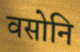
वसोनि